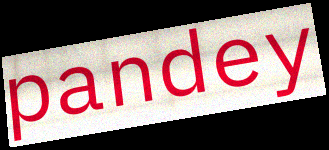
pandey